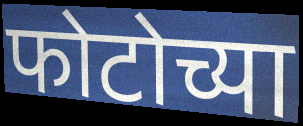
फोटोच्या